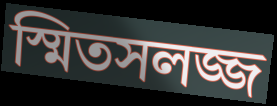
স্মিতসলজ্জ